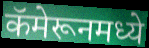
कॅमेरूनमध्ये